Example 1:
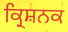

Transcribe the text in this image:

ਕ੍ਰਿਸ਼ਨਕ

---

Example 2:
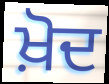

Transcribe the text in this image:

ਖ਼ੋਦ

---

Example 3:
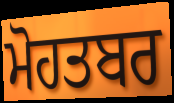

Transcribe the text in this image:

ਮੋਹਤਬਰ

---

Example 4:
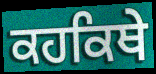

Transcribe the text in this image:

ਕਹਕਿਥੇ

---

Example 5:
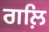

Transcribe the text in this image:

ਗਲ਼ਿ